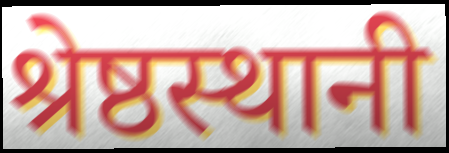
श्रेष्ठस्थानी